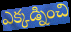
ఎక్కడ్నించి